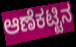
ಆಣೆಕಟ್ಟಿನ